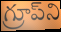
గ్రూప్‌ని